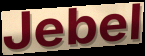
Jebel